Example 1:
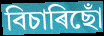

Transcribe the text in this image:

বিচাৰিছোঁ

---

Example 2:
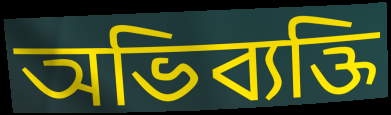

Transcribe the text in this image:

অভিব্যক্তি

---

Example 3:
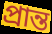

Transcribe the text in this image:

প্ৰান্ত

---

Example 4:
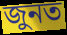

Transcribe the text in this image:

জুনত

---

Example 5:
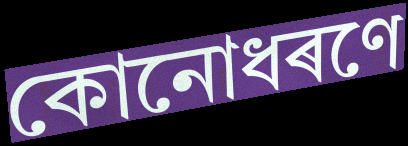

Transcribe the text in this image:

কোনোধৰণে